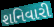
શનિવારી